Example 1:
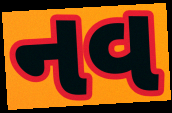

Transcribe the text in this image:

નવ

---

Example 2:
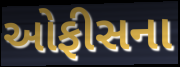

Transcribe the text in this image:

ઓફીસના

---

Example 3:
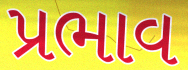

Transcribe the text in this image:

પ્રભાવ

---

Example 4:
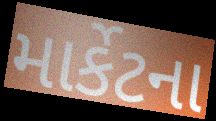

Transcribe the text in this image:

માર્કેટના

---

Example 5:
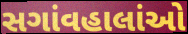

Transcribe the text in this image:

સગાંવહાલાંઓ